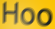
Hoo